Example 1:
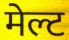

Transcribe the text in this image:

मेल्ट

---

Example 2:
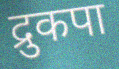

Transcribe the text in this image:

द्रुकपा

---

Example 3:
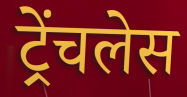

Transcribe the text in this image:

ट्रेंचलेस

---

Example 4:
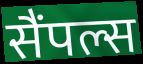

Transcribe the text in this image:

सैंपल्‍स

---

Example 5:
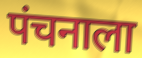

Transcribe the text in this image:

पंचनाला